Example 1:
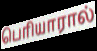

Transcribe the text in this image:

பெரியாரால்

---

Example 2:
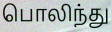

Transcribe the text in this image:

பொலிந்து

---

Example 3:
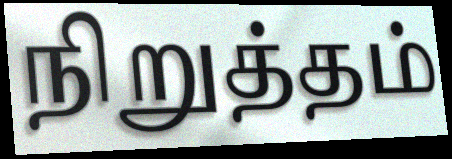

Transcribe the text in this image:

நிறுத்தம்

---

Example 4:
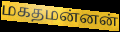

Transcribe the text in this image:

மகதமன்னன்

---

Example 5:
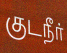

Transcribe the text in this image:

குடநீர்